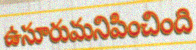
ఉసూరుమనిపించింది